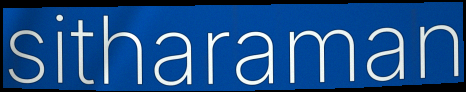
sitharaman